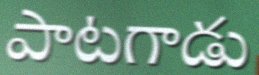
పాటగాడు